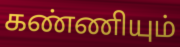
கண்ணியும்